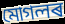
মোগলৰ